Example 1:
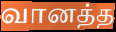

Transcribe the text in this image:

வானத்த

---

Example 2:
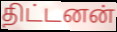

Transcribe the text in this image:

திட்டனன்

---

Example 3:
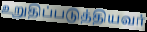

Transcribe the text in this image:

உறுதிப்படுத்தியவர்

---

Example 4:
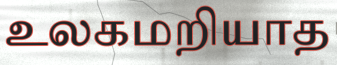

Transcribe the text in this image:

உலகமறியாத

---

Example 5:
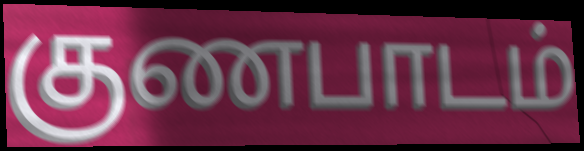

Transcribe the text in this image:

குணபாடம்